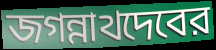
জগন্নাথদেবের